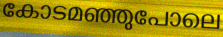
കോടമഞ്ഞുപോലെ